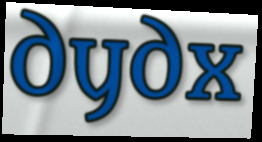
dydx